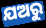
ଯଅରୁ